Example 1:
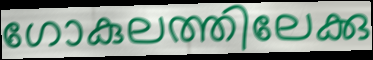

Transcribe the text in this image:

ഗോകുലത്തിലേക്കു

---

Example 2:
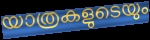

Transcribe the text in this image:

യാത്രകളുടെയും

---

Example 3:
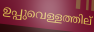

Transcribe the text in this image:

ഉപ്പുവെള്ളത്തില്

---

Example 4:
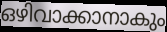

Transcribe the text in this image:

ഒഴിവാക്കാനാകും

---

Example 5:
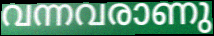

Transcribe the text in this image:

വന്നവരാണു